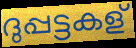
ദുപ്പട്ടകള്